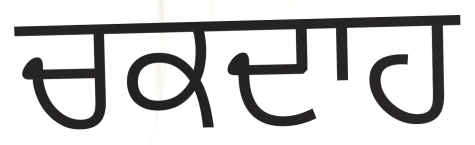
ਚਕਦਾਹ